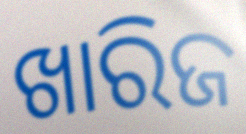
ଖାରିଜ